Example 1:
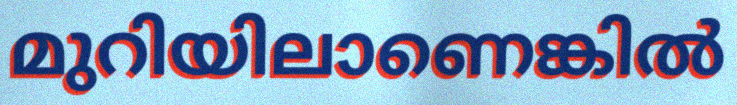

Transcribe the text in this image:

മുറിയിലാണെങ്കിൽ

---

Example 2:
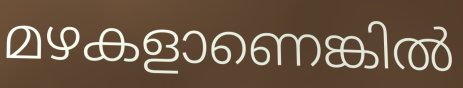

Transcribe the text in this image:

മഴകളാണെങ്കിൽ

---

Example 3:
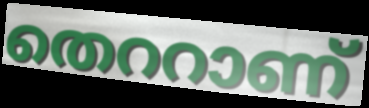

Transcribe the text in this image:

തെററാണ്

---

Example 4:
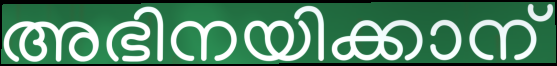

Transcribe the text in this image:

അഭിനയിക്കാന്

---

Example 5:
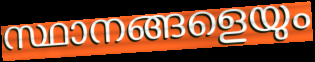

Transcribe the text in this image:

സ്ഥാനങ്ങളെയും